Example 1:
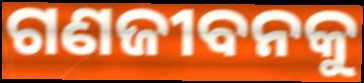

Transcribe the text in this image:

ଗଣଜୀବନକୁ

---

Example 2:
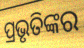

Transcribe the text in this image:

ପ୍ରଭୃତିଙ୍କର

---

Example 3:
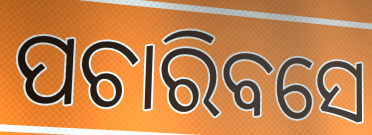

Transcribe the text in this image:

ପଚାରିବସେ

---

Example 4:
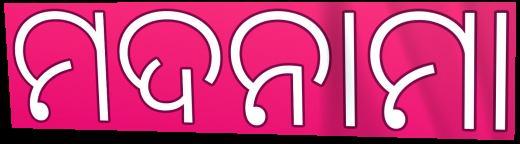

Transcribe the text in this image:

ମଦନାମା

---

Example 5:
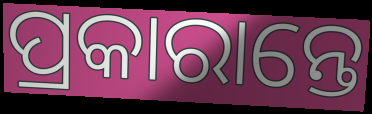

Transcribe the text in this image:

ପ୍ରକାରାନ୍ତେ